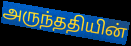
அருந்ததியின்